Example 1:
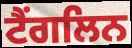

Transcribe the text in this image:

ਟੈਂਗਲਿਨ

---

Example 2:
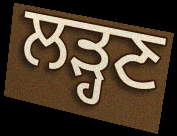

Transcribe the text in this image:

ਲੜ੍ਹਣ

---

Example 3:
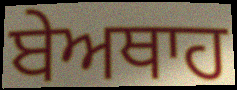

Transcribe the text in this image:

ਬੇਅਥਾਹ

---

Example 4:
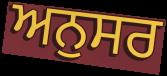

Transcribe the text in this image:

ਅਨੁਸਰ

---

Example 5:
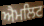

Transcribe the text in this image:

ਐਮਲਿਟ